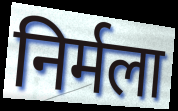
निर्मला